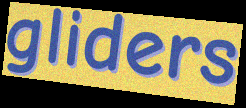
gliders